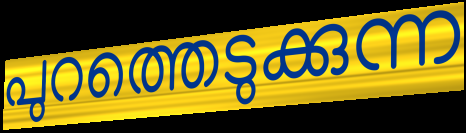
പുറത്തെടുക്കുന്ന